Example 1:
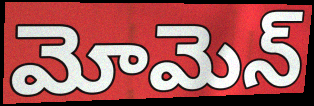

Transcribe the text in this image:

మోమెన్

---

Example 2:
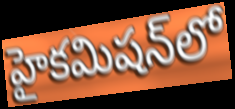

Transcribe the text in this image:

హైకమిషన్‌లో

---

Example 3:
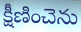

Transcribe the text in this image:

క్షీణించెను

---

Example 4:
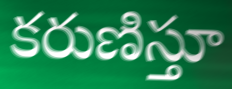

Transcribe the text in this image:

కరుణిస్తూ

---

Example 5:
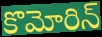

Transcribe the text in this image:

కొమోరిన్